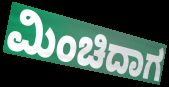
ಮಿಂಚಿದಾಗ